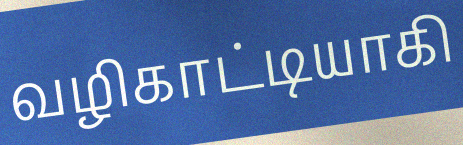
வழிகாட்டியாகி